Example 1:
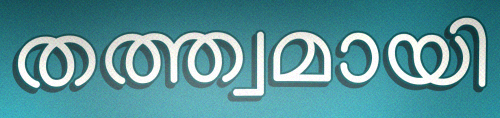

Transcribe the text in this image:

തത്ത്വമായി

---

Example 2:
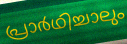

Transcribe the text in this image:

പ്രാർഥിച്ചാലും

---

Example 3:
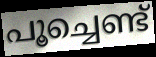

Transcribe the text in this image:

പൂച്ചെണ്ട്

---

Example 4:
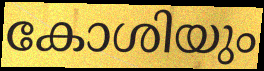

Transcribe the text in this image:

കോശിയും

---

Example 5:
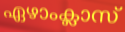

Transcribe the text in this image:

ഏഴാംക്ലാസ്